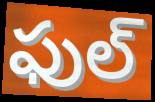
ఫుల్